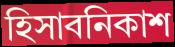
হিসাবনিকাশ